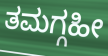
ತಮಗ್ಗಹೀ